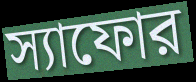
স্যাফোর